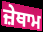
ਜ਼ੇਥਾਮ